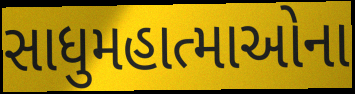
સાધુમહાત્માઓના